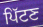
ਪਿੱਟਣ